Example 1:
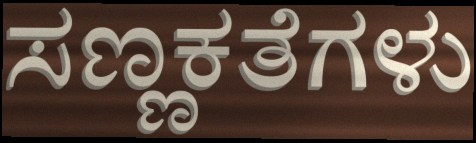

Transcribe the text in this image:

ಸಣ್ಣಕತೆಗಳು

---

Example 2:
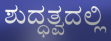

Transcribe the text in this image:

ಶುದ್ಧತ್ವದಲ್ಲಿ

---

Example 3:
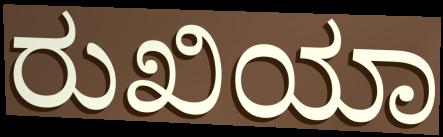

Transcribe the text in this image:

ರುಖಿಯಾ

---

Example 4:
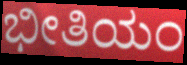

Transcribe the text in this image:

ಭೀತಿಯಂ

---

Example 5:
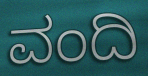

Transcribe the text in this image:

ವಂದಿ